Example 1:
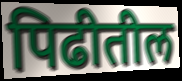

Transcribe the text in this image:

पिढीतील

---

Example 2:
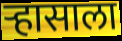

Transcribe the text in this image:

ऱ्हासाला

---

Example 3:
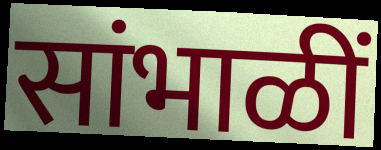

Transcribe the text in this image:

सांभाळीं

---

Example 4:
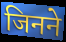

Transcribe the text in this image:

जिनने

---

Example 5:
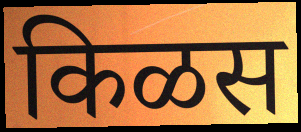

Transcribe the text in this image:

किळस